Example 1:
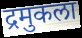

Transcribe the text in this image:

द्रमुकला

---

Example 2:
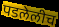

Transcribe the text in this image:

पडलेलीच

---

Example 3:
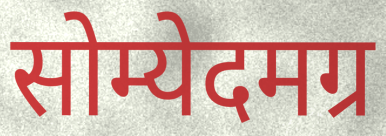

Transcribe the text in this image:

सोम्येदमग्र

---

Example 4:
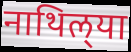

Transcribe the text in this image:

नाथिल्या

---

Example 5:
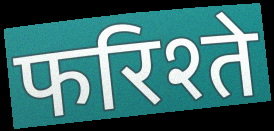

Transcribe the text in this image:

फरिश्ते